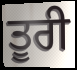
ਤੂਰੀ